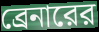
ব্রেনারের